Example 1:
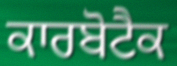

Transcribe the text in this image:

ਕਾਰਬੋਟੈਕ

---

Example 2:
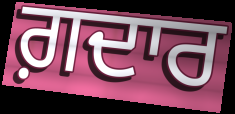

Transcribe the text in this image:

ਗ਼ਦਾਰ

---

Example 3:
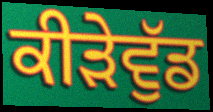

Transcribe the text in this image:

ਕੀੜੇਵੁੱਡ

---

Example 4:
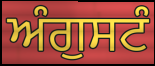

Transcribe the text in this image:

ਅੰਗੁਸਟੰ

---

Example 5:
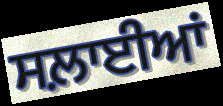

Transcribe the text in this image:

ਸਲ਼ਾਈਆਂ